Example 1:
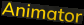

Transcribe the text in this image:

Animator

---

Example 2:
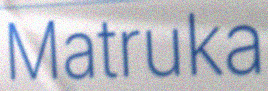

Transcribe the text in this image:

Matruka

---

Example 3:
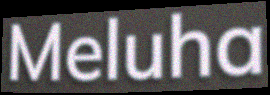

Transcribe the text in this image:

Meluha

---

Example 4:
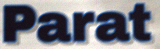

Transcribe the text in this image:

Parat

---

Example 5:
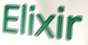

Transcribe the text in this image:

Elixir